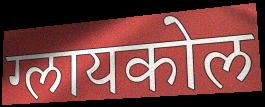
ग्लायकोल